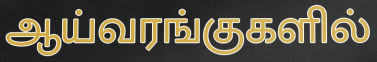
ஆய்வரங்குகளில்